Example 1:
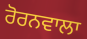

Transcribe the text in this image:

ਰੋਰਨਵਾਲਾ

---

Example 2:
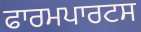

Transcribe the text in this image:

ਫਾਰਮਪਾਰਟਸ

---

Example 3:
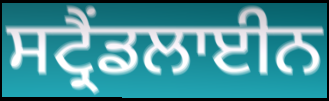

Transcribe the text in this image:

ਸਟ੍ਰੈਂਡਲਾਈਨ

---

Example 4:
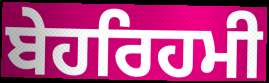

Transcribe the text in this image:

ਬੇਹਰਿਹਮੀ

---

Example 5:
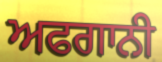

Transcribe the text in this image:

ਅਫਗਾਨੀ